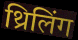
थ्रिलिंग